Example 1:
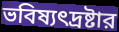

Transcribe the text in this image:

ভবিষ্যৎদ্রষ্টার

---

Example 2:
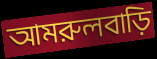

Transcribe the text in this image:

আমরুলবাড়ি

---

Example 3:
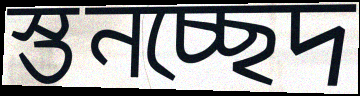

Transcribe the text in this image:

স্তনচ্ছেদ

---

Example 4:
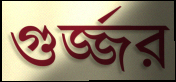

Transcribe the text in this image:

গুর্জ্জর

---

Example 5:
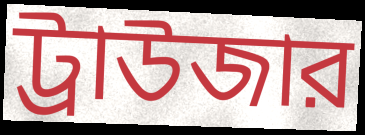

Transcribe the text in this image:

ট্রাউজার